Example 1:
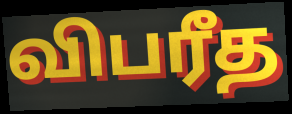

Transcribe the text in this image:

விபரீத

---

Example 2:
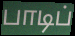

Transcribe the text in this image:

பாடிப்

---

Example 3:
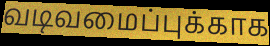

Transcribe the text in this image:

வடிவமைப்புக்காக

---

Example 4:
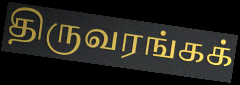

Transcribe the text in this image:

திருவரங்கக்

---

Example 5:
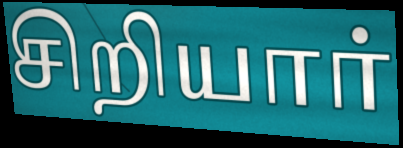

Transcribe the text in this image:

சிறியார்